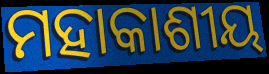
ମହାକାଶୀୟ